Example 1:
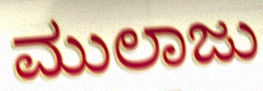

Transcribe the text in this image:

ಮುಲಾಜು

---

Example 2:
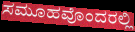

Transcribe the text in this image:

ಸಮೂಹವೊಂದರಲ್ಲಿ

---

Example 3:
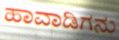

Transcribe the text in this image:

ಹಾವಾಡಿಗನು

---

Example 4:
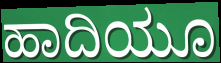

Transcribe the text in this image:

ಹಾದಿಯೂ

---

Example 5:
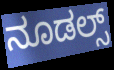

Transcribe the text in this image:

ನೂಡಲ್ಸ್